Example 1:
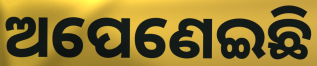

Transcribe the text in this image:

ଅପେଣେଇଛି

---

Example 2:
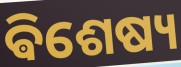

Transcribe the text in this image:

ଵିଶେଷ୍ୟ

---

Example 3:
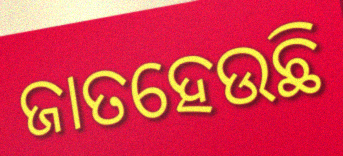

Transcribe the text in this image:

ଜାତହେଉଛି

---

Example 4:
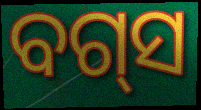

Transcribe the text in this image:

ବଗ୍‌ସ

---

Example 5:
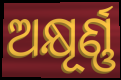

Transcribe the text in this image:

ଅକ୍ଷୂର୍ଣ୍ଣ